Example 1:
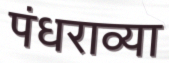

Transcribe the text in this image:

पंधराव्या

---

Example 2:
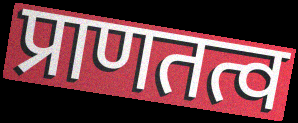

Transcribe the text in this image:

प्राणतत्व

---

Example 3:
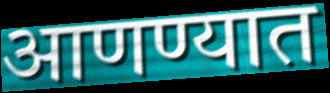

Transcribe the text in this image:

आणण्यात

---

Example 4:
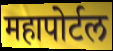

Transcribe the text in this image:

महापोर्टल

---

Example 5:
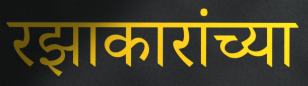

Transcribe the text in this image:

रझाकारांच्या